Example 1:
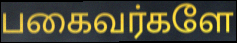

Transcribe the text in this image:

பகைவர்களே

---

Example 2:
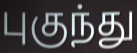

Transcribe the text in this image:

புகுந்து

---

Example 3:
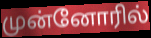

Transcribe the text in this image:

முன்னோரில்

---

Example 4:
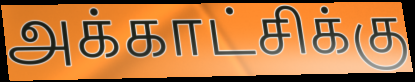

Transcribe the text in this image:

அக்காட்சிக்கு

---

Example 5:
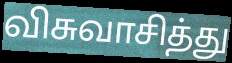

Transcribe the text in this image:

விசுவாசித்து